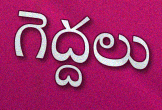
గెద్దలు